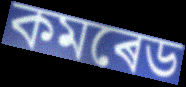
কমৰেড